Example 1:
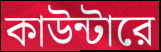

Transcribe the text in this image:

কাউন্টারে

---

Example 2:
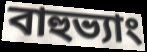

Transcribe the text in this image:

বাহুভ্যাং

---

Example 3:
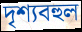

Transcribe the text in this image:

দৃশ্যবহুল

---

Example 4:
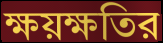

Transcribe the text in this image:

ক্ষয়ক্ষতির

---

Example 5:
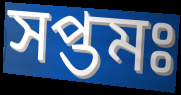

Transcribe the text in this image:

সপ্তমঃ